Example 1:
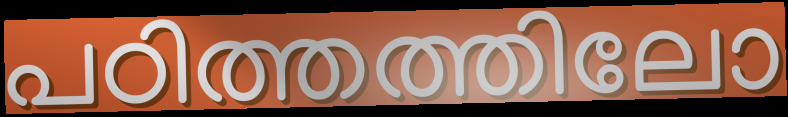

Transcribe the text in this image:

പഠിത്തത്തിലോ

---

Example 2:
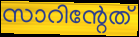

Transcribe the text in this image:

സാറിന്റേത്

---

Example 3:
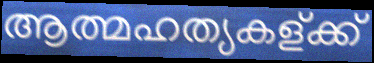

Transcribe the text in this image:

ആത്മഹത്യകള്ക്ക്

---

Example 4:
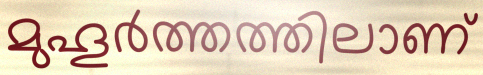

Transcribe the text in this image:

മുഹൂർത്തത്തിലാണ്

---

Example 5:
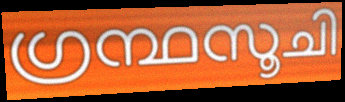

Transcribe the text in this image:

ഗ്രന്ഥസൂചി